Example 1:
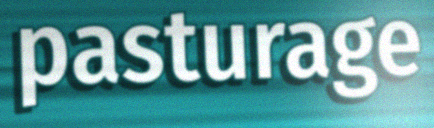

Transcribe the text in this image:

pasturage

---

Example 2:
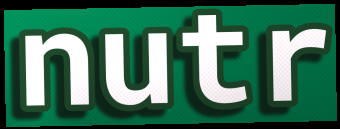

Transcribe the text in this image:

nutr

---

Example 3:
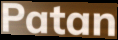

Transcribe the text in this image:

Patan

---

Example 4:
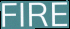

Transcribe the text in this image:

FIRE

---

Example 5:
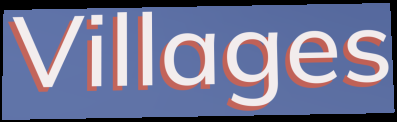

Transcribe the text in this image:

Villages